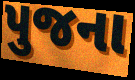
પુજના